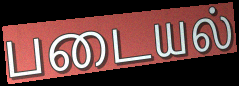
படையல்